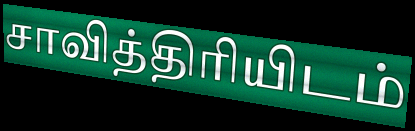
சாவித்திரியிடம்